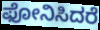
ಫೋನಿಸಿದರೆ